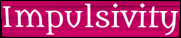
Impulsivity